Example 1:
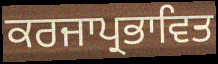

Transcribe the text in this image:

ਕਰਜਾਪ੍ਰਭਾਵਿਤ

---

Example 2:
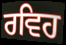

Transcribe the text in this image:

ਰਵਿਹ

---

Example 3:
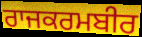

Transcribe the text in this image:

ਰਾਜਕਰਮਬੀਰ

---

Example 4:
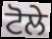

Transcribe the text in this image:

ਟੋਲੇ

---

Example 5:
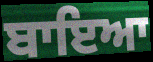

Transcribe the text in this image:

ਬਾਇਆ